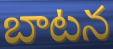
బాటన